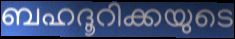
ബഹദൂറിക്കയുടെ